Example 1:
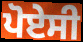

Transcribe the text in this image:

ਪੋਏਸੀ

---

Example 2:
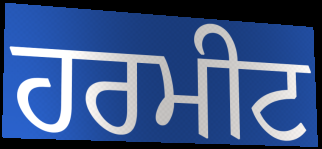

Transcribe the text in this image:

ਹਰਮੀਟ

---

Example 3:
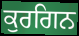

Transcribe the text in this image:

ਕੁਰਗਿਨ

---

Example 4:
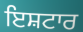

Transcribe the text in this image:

ਇਸ਼ਟਾਰ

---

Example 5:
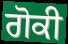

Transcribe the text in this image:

ਗੋਕੀ